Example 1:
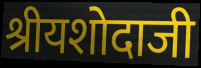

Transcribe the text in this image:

श्रीयशोदाजी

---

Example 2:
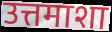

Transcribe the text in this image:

उत्तमाशा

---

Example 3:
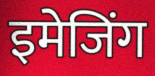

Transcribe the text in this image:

इमेजिंग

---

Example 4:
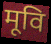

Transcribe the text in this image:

मूवि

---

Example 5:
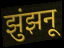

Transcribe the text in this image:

झुंझनू